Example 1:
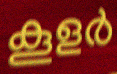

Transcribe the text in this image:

കൂളർ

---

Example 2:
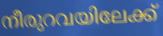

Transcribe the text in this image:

നീരുറവയിലേക്ക്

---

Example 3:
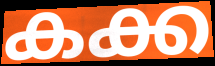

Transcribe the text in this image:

കക്ക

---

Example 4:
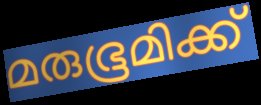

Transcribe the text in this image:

മരുഭൂമിക്ക്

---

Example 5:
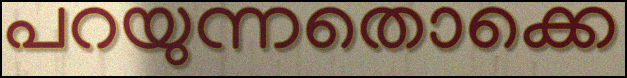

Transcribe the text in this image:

പറയുന്നതൊക്കെ